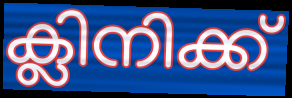
ക്ലിനിക്ക്